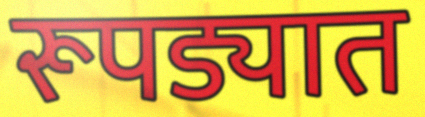
रूपड्यात